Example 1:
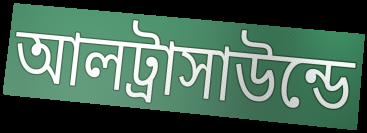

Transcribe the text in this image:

আলট্রাসাউন্ডে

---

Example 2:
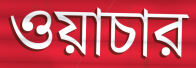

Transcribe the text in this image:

ওয়াচার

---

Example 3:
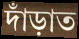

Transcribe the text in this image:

দাঁড়াত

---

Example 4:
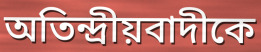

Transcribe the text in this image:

অতিন্দ্রীয়বাদীকে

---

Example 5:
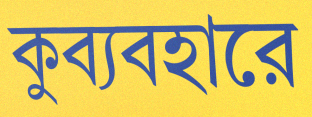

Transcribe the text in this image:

কুব্যবহারে